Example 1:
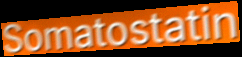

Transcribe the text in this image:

Somatostatin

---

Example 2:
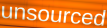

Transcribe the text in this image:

unsourced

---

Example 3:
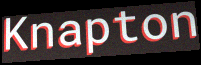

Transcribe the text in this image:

Knapton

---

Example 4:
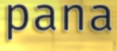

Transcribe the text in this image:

pana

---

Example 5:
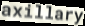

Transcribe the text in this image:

axillary